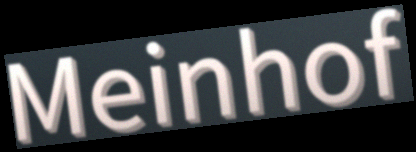
Meinhof